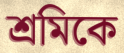
শ্ৰমিকে